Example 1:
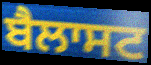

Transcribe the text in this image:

ਬੈਲਾਸਟ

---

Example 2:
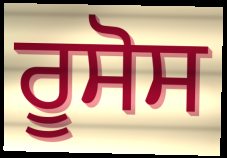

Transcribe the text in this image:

ਰੂਸੋਸ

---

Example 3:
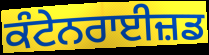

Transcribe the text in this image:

ਕੰਟੇਨਰਾਈਜ਼ਡ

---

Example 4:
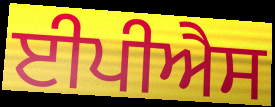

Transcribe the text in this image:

ਈਪੀਐਸ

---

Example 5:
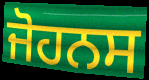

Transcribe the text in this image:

ਜੋਹਨਸ